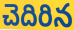
చెదిరిన